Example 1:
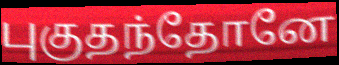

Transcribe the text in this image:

புகுதந்தோனே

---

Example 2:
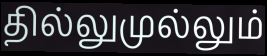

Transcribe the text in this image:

தில்லுமுல்லும்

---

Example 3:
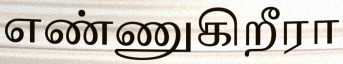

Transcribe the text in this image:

எண்ணுகிறீரா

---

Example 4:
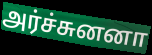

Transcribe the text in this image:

அர்ச்சுனனா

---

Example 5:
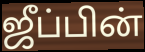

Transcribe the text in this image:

ஜீப்பின்